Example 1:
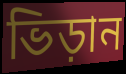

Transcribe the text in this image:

ভিড়ান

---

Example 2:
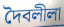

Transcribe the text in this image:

দৈবলীলা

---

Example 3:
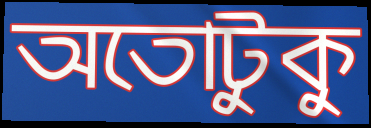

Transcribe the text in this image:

অতোটুকু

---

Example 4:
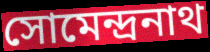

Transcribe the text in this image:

সোমেন্দ্রনাথ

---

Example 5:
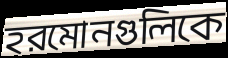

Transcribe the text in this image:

হরমোনগুলিকে